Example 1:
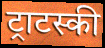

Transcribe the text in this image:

ट्राटस्की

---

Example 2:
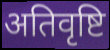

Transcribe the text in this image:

अतिवृष्टि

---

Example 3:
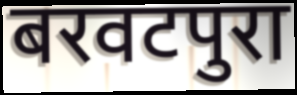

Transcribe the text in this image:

बरवटपुरा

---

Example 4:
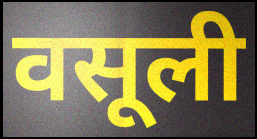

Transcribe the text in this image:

वसूली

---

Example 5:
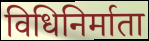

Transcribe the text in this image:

विधिनिर्माता